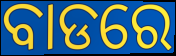
ବାଡରେ